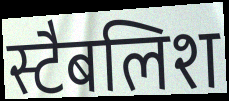
स्टैबलिश